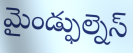
మైండ్ఫుల్నెస్